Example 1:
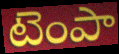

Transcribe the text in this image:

టెంపా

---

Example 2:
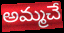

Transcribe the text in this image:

అమ్మచే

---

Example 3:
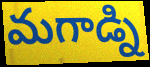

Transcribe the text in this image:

మగాడ్ని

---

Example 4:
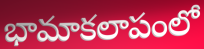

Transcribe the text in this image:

భామాకలాపంలో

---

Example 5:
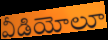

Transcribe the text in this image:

వీడియోలూ